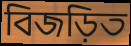
বিজড়িত